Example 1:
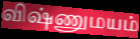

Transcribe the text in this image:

விஷ்ணுமயம்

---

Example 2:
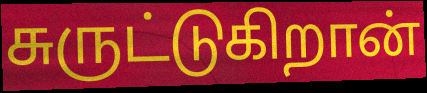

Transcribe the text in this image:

சுருட்டுகிறான்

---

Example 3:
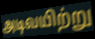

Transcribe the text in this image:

அடிவயிற்று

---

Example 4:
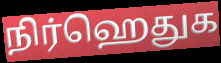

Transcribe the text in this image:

நிர்ஹெதுக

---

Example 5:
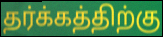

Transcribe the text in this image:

தர்க்கத்திற்கு